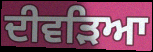
ਦੀਵੜਿਆ